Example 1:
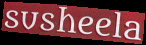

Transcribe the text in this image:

susheela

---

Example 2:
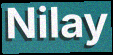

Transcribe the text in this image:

Nilay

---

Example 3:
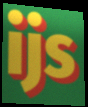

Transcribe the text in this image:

ijs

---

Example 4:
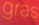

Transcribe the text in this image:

gras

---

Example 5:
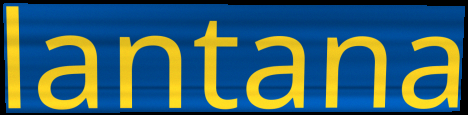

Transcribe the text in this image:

lantana